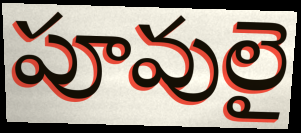
పూవులై